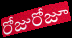
రోజురోజూ